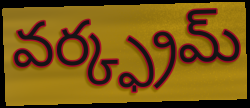
వర్క్ఫ్రమ్